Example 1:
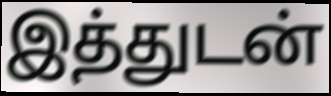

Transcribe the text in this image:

இத்துடன்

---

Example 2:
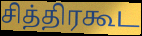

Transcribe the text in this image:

சித்திரகூட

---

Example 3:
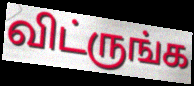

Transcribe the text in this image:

விட்ருங்க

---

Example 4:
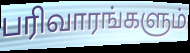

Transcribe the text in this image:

பரிவாரங்களும்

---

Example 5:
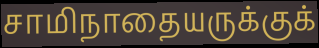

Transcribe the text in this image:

சாமிநாதையருக்குக்